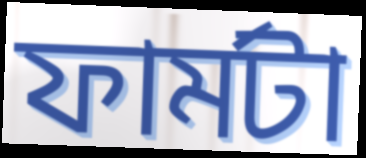
ফার্মটা